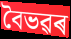
বৈভৱৰ